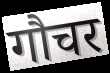
गौचर